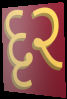
દૃર